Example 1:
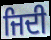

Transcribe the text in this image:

ਜਿਦੀ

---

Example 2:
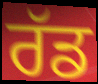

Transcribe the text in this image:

ਰੱਡ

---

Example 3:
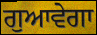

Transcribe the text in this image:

ਗੁਆਵੇਗਾ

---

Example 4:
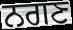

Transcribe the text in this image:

ਨਗਣ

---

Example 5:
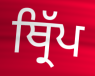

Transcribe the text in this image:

ਥ੍ਰਿੱਪ